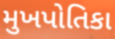
મુખપોતિકા